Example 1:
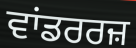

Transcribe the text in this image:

ਵਾਂਡਰਰਜ਼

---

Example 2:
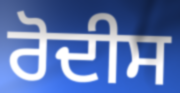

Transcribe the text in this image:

ਰੋਦੀਸ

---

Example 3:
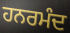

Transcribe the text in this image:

ਹਨਰਮੰਦ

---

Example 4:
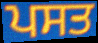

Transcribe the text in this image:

ਪਸਤ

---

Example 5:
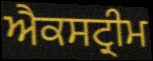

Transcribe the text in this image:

ਐਕਸਟ੍ਰੀਮ